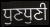
ਧੁਣਧੁਣੀ